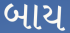
બાય